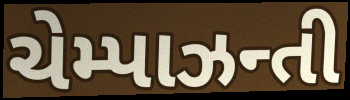
ચેમ્પાઝન્તી